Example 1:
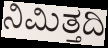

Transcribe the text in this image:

ನಿಮಿತ್ತದಿ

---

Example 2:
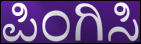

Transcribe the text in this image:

ಪಿಂಗಿಸಿ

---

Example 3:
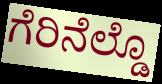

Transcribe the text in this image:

ಗೆರಿನೆಲ್ಡೊ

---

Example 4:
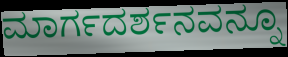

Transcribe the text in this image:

ಮಾರ್ಗದರ್ಶನವನ್ನೂ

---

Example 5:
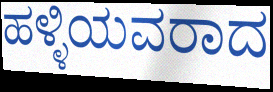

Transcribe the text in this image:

ಹಳ್ಳಿಯವರಾದ